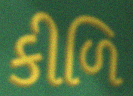
કીળિ